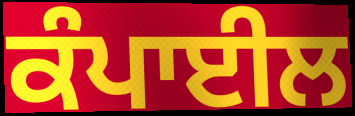
ਕੰਪਾਈਲ